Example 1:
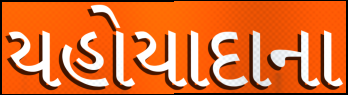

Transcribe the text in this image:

યહોયાદાના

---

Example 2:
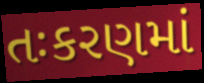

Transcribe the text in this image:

તઃકરણમાં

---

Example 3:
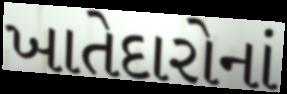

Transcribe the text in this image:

ખાતેદારોનાં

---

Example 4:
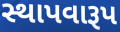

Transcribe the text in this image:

સ્થાપવારૂપ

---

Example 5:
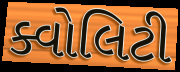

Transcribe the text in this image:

ક્વોલિટી